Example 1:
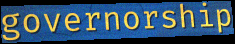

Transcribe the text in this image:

governorship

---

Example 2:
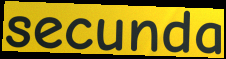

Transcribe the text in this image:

secunda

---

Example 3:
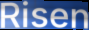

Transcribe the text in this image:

Risen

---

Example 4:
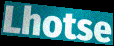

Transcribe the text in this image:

Lhotse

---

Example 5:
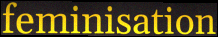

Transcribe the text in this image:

feminisation